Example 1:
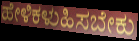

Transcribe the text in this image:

ಹೇಳಿಕಳುಹಿಸಬೇಕು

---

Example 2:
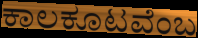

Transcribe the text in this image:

ಕಾಲಕೂಟವೆಂಬ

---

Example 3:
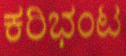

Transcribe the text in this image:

ಕರಿಭಂಟ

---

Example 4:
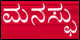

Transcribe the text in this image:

ಮನಸ್ಫು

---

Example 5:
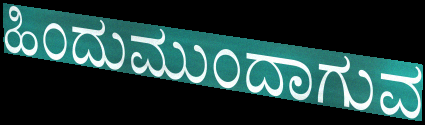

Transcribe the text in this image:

ಹಿಂದುಮುಂದಾಗುವ